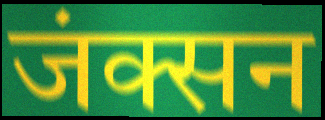
जंक्सन